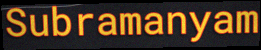
Subramanyam